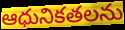
ఆధునికతలను